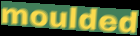
moulded